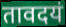
तावदयं